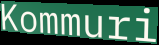
Kommuri